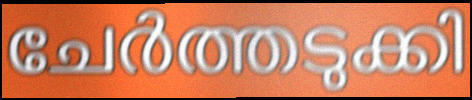
ചേർത്തടുക്കി